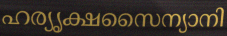
ഹര്യൃക്ഷസൈന്യാനി